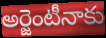
అర్జెంటీనాకు